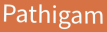
Pathigam